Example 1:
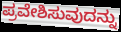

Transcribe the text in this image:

ಪ್ರವೇಶಿಸುವುದನ್ನು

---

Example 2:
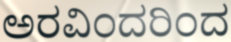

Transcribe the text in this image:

ಅರವಿಂದರಿಂದ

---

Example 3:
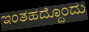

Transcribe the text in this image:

ಇಂತಹದ್ದೊಂದು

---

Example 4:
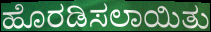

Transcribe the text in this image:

ಹೊರಡಿಸಲಾಯಿತು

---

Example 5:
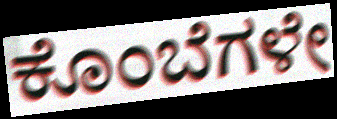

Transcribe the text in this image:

ಕೊಂಬೆಗಳೇ